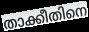
താക്കീതിനെ